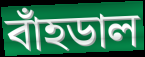
বাঁহডাল